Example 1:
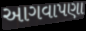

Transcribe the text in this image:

આગવાપણા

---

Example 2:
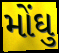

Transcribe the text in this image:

મોંઘુ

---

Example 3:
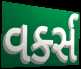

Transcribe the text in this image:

વર્ક્સ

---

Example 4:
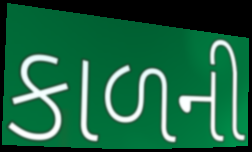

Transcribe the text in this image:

કાળની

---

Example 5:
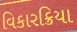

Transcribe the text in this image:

વિકારક્રિયા